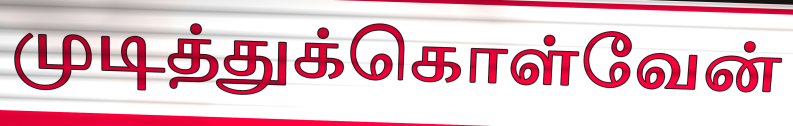
முடித்துக்கொள்வேன்